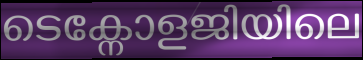
ടെക്നോളജിയിലെ